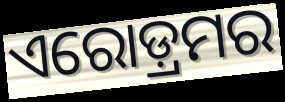
ଏରୋଡ଼୍ରମର